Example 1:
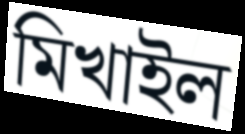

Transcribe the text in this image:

মিখাইল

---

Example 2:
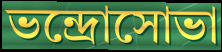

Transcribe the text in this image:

ভন্দ্রোসোভা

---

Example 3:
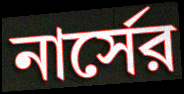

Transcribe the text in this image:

নার্সের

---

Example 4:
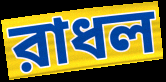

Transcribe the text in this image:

রাধল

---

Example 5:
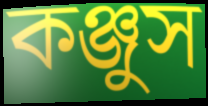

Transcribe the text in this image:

কঞ্জুস